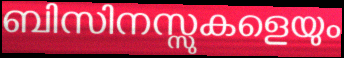
ബിസിനസ്സുകളെയും